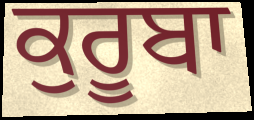
ਕੁਰੂਬਾ